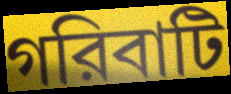
গরিবাটি